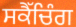
ਸਕੈੱਚਿੰਗ